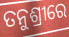
ତନୁଶ୍ରୀରେ